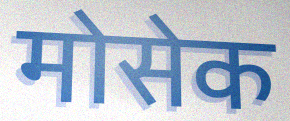
मोसेक